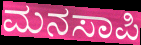
ಮನಸಾಪಿ